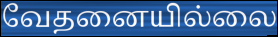
வேதனையில்லை